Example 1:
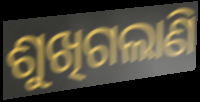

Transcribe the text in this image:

ଶୁଖିଗଲାଣି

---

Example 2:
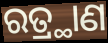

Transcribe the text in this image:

ରତ୍ର୍ଥାଣ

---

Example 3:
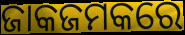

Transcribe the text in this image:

ଜାକଜମକରେ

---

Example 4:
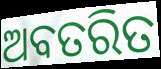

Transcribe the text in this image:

ଅବତରିତ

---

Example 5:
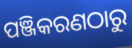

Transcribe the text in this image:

ପଞ୍ଜିକରଣଠାରୁ